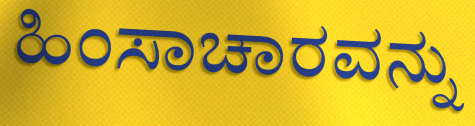
ಹಿಂಸಾಚಾರವನ್ನು